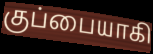
குப்பையாகி